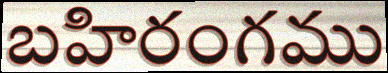
బహిరంగము